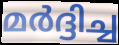
മർദ്ദിച്ച